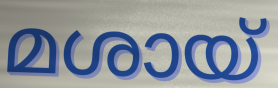
മശായ്